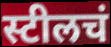
स्टीलचं